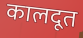
कालदूत